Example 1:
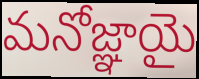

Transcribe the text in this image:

మనోజ్ఞాయై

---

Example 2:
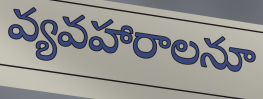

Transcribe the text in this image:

వ్యవహారాలనూ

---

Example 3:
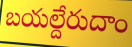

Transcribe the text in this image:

బయల్దేరుదాం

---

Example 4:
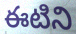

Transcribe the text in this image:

ఈటిని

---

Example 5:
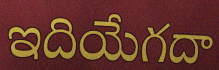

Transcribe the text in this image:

ఇదియేగదా